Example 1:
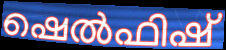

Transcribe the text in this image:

ഷെൽഫിഷ്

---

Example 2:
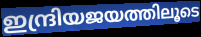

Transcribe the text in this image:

ഇന്ദ്രിയജയത്തിലൂടെ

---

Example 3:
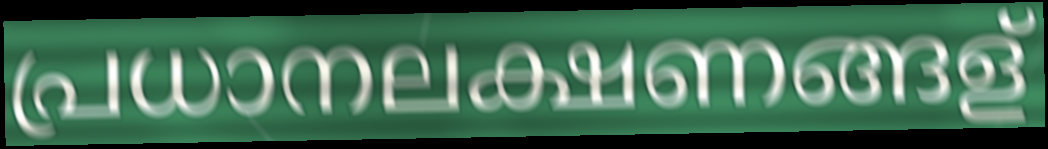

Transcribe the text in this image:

പ്രധാനലക്ഷണങ്ങള്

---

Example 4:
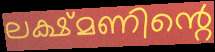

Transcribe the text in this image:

ലക്ഷ്മണിന്റെ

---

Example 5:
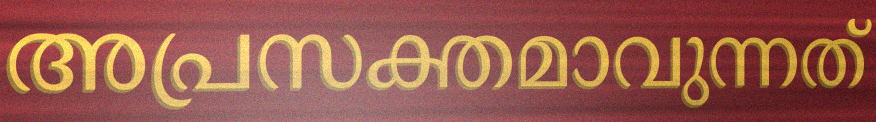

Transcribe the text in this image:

അപ്രസക്തമാവുന്നത്